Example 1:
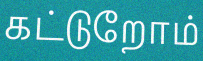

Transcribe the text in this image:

கட்டுறோம்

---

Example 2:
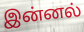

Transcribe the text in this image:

இன்னல்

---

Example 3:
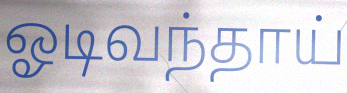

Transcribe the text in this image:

ஓடிவந்தாய்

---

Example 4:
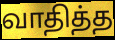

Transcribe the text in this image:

வாதித்த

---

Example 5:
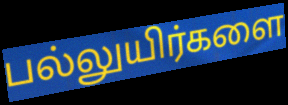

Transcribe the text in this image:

பல்லுயிர்களை